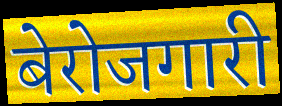
बेरोजगारी